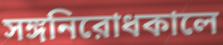
সঙ্গনিরোধকালে